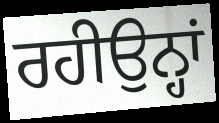
ਰਹੀਉਨ੍ਹਾਂ